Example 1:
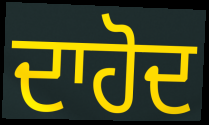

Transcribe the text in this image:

ਦਾਹੋਦ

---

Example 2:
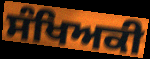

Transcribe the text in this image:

ਸੰਖਿਅਕੀ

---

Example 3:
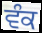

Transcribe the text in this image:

ਵੰਕ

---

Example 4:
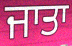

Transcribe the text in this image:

ਜਾਤਾ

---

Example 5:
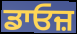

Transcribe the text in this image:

ਡਾਓਜ਼